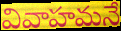
వివాహమనే